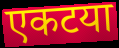
एकटया